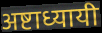
अष्टाध्यायी